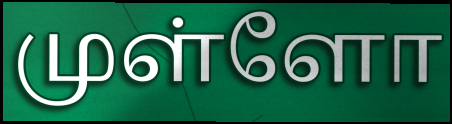
முள்ளோ